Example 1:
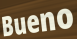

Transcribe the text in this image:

Bueno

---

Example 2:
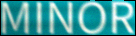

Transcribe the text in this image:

MINOR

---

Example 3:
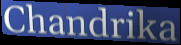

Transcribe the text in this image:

Chandrika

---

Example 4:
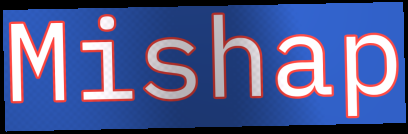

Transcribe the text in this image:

Mishap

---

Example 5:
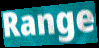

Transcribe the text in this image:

Range